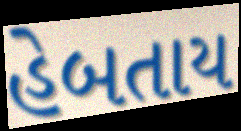
હેબતાય